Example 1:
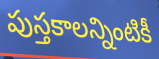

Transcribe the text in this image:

పుస్తకాలన్నింటికీ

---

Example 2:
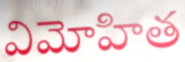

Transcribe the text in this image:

విమోహిత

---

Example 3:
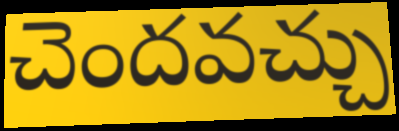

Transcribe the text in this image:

చెందవచ్చు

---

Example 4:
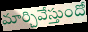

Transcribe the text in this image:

మార్చివేస్తుందో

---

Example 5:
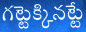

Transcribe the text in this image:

గట్టెక్కినట్టే